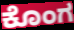
ಕೊಂಗ